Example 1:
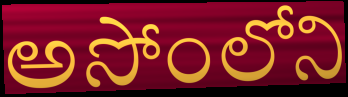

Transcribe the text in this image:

అసోంలోని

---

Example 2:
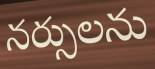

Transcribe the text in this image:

నర్సులను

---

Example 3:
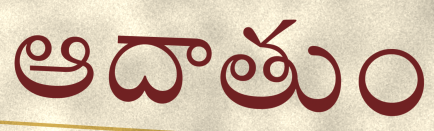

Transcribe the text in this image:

ఆదాతుం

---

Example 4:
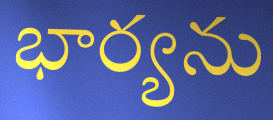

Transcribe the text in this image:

భార్యను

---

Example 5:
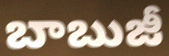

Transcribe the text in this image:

బాబుజీ